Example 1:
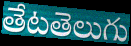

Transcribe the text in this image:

తేటతెలుగు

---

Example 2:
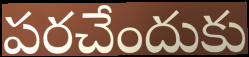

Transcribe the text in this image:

పరచేందుకు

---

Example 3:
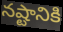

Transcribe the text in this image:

నష్టానికి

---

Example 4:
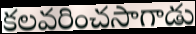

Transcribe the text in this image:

కలవరించసాగాడు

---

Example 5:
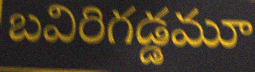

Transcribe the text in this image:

బవిరిగడ్డమూ